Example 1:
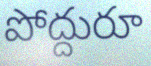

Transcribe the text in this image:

పోద్దురూ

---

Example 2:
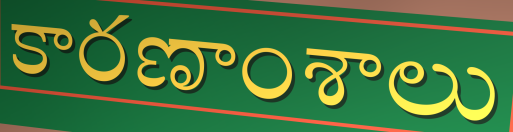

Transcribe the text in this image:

కారణాంశాలు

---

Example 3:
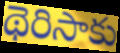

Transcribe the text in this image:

థెరిసాకు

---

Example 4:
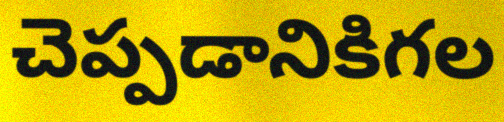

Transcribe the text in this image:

చెప్పడానికిగల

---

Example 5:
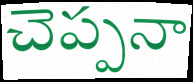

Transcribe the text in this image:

చెప్పనా